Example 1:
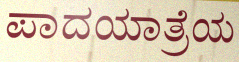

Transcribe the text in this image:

ಪಾದಯಾತ್ರೆಯ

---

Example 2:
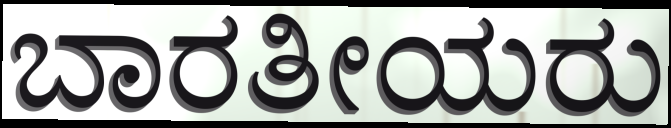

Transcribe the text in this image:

ಬಾರತೀಯರು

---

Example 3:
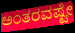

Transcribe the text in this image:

ಅಂತರವಷ್ಟೇ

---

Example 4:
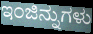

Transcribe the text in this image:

ಇಂಜಿನ್ನುಗಳು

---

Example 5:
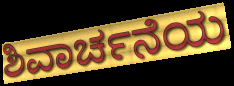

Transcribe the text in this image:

ಶಿವಾರ್ಚನೆಯ